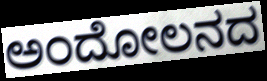
ಅಂದೋಲನದ